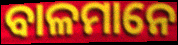
ବାଳମାନେ